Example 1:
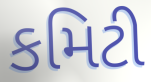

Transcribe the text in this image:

કમિટી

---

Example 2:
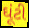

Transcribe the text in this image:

ઘૂંટી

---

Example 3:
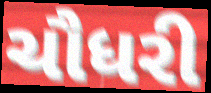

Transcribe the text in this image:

ચૌધરી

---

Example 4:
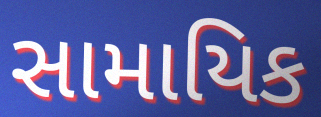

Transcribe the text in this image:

સામાયિક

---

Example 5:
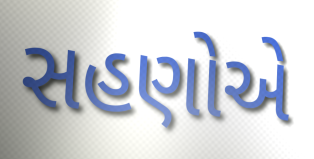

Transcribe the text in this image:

સહણોએ